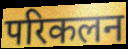
परिकलन